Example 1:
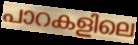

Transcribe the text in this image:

പാറകളിലെ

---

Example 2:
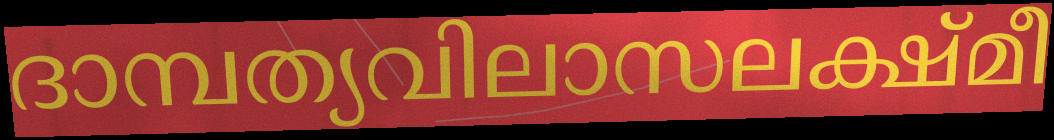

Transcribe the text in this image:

ദാമ്പത്യവിലാസലക്ഷ്മീ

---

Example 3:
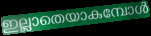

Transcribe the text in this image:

ഇല്ലാതെയാകുമ്പോൾ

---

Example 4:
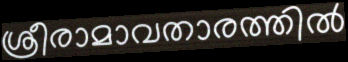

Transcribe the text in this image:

ശ്രീരാമാവതാരത്തിൽ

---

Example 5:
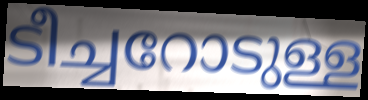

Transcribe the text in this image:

ടീച്ചറോടുള്ള